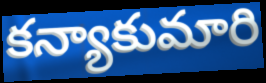
కన్యాకుమారి